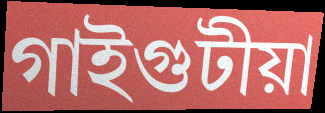
গাইগুটীয়া